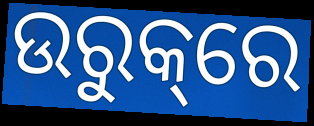
ଉରୁକ୍‌ରେ